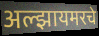
अल्झायमरचे